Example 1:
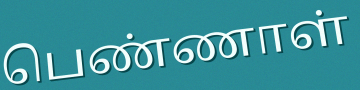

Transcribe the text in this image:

பெண்ணாள்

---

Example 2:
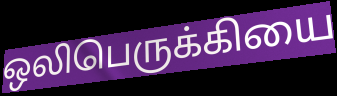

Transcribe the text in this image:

ஒலிபெருக்கியை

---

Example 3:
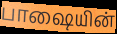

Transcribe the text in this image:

பாஷையின்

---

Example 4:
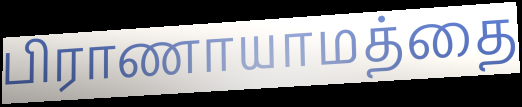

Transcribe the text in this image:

பிராணாயாமத்தை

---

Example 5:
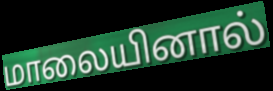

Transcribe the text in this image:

மாலையினால்